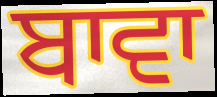
ਬਾਵਾ